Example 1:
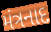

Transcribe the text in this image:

મંત્રનાદ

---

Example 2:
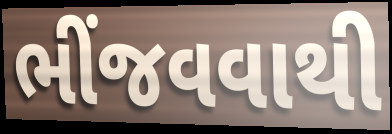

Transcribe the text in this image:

ભીંજવવાથી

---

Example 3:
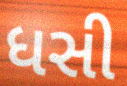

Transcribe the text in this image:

ધસી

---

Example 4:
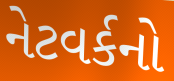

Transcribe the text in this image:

નેટવર્કનો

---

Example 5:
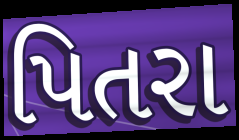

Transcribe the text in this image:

પિતરા